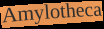
Amylotheca